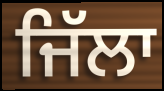
ਜਿੱਲਾ